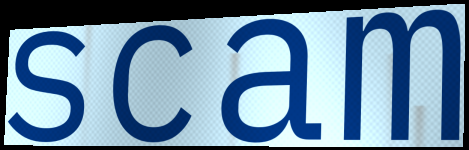
scam